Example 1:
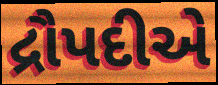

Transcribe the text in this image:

દ્રૌપદીએ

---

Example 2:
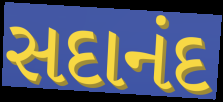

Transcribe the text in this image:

સદાનંદ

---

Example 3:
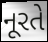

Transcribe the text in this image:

નૂરતે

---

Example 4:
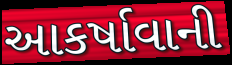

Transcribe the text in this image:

આકર્ષાવાની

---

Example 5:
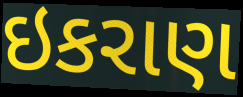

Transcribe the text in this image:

ઇકરાણ